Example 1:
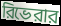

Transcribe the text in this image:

রিভেরার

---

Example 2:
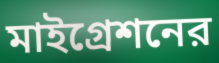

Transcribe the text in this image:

মাইগ্রেশনের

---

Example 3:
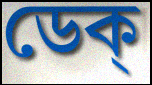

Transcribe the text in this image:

ডেক্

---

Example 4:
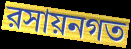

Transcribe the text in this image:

রসায়নগত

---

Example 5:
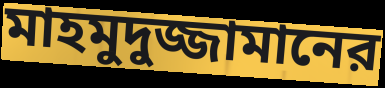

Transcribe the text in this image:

মাহমুদুজ্জামানের